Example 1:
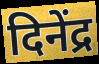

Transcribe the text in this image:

दिनेंद्र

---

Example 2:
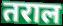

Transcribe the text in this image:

तराल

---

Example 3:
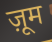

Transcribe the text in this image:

ज़ूम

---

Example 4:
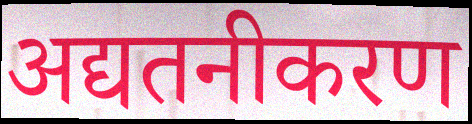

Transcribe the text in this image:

अद्यतनीकरण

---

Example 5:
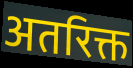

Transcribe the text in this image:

अतरिक्त